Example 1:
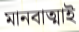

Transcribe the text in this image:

মানবাত্মাই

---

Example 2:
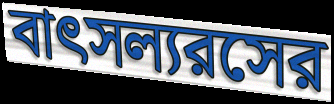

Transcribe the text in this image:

বাৎসল্যরসের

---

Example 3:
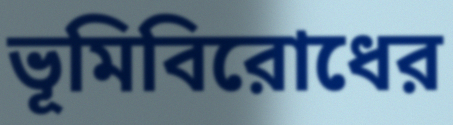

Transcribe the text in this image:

ভূমিবিরোধের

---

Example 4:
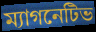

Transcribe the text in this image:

ম্যাগনেটিভ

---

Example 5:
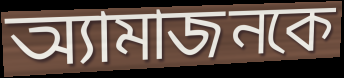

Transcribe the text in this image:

অ্যামাজনকে